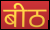
बीठ